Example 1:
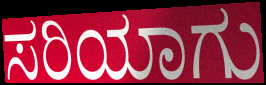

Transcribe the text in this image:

ಸರಿಯಾಗು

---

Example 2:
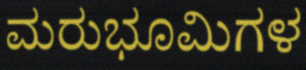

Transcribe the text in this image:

ಮರುಭೂಮಿಗಳ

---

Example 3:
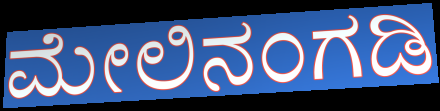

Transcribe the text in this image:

ಮೇಲಿನಂಗಡಿ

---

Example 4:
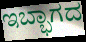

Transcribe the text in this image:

ಇಬ್ಭಾಗದ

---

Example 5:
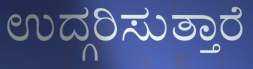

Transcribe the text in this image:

ಉದ್ಗರಿಸುತ್ತಾರೆ